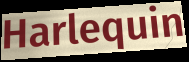
Harlequin